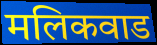
मलिकवाड